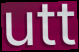
utt